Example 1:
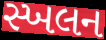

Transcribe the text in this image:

સ્ખલન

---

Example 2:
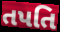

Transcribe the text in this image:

તપતિ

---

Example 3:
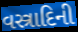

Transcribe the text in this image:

વસ્ત્રાદિની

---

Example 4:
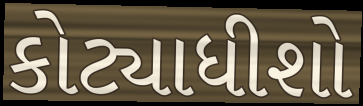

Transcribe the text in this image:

કોટ્યાધીશો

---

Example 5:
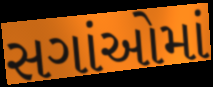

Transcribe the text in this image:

સગાંઓમાં